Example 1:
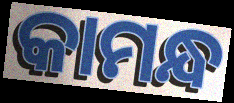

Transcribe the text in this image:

କାମନ୍ଧ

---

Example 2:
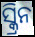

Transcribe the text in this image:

ସ୍କ୍ରିନ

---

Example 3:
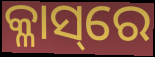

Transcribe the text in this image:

କ୍ଳାସ୍‌ରେ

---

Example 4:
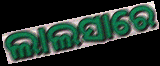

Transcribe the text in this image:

ଲାଲସାରେ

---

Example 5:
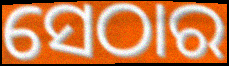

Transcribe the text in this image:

ସେଠାର